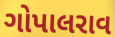
ગોપાલરાવ